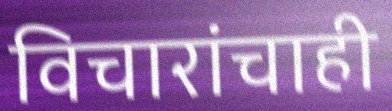
विचारांचाही